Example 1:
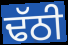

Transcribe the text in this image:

ਢੱਠੀ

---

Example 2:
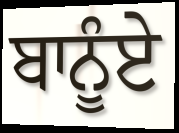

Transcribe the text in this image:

ਬਾਨੂੰਏ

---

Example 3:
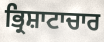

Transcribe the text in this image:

ਭ੍ਰਿਸ਼ਾਟਾਚਾਰ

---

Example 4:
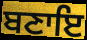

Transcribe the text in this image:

ਬਣਾਇ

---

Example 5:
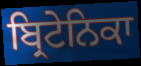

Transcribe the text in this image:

ਬ੍ਰਿਟੇਨਿਕਾ